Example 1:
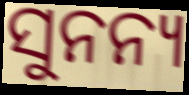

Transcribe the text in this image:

ସୁନନ୍ୟ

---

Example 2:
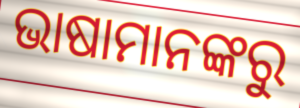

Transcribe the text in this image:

ଭାଷାମାନଙ୍କରୁ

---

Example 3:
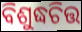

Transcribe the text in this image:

ବିଶୁଦ୍ଧଚିତ୍ତ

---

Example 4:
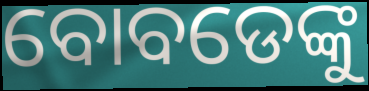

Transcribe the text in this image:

ବୋବଡେଙ୍କୁ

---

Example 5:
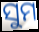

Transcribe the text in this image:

ସୁମ